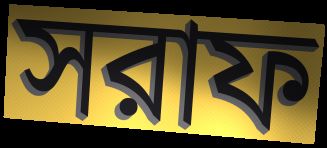
সরাফ